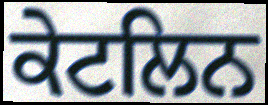
ਕੇਟਲਿਨ